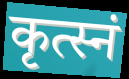
कृत्स्नं